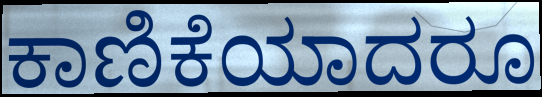
ಕಾಣಿಕೆಯಾದರೂ